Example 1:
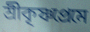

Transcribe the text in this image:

শ্রীকৃষ্ণপ্রেমে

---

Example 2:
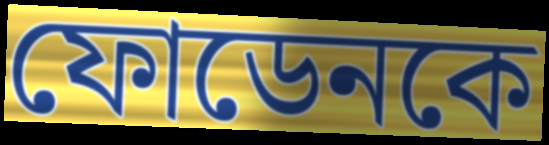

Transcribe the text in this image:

ফোডেনকে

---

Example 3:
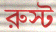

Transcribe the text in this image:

রুস্ট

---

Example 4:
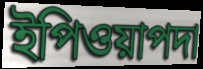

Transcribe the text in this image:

ইপিওয়াপদা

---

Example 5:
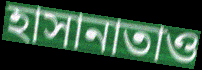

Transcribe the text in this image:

হাসানাতাও